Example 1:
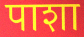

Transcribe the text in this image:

पाशा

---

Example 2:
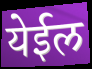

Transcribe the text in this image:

येईल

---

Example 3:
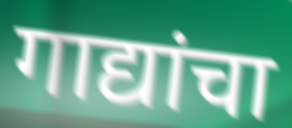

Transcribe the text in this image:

गाद्यांचा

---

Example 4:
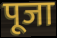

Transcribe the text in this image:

पूजा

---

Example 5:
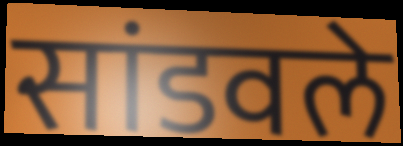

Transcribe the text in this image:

सांडवले